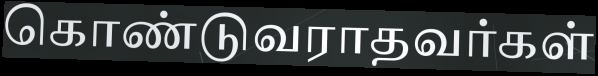
கொண்டுவராதவர்கள்